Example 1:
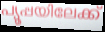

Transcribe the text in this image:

പ്യൂപ്പയിലേക്ക്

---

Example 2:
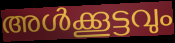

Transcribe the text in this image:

അൾക്കൂട്ടവും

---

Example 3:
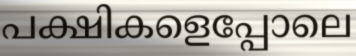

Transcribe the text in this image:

പക്ഷികളെപ്പോലെ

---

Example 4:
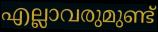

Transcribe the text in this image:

എല്ലാവരുമുണ്ട്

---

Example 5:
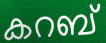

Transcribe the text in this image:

കറബ്